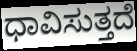
ಧಾವಿಸುತ್ತದೆ